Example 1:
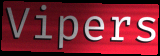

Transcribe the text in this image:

Vipers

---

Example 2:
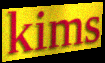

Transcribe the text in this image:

kims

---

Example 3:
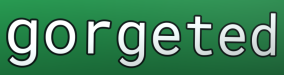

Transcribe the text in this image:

gorgeted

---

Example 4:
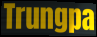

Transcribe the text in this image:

Trungpa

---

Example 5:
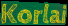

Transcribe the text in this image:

Korlai